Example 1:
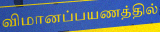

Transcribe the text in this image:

விமானப்பயணத்தில்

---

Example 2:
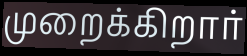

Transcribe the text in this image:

முறைக்கிறார்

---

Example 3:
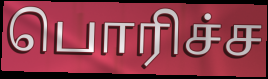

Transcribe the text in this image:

பொரிச்ச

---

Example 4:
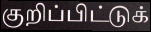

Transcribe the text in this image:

குறிப்பிட்டுக்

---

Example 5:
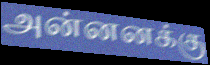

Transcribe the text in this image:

அன்னனக்கு